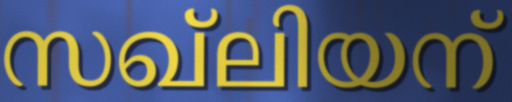
സഖ്ലിയന്